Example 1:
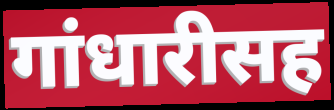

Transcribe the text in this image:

गांधारीसह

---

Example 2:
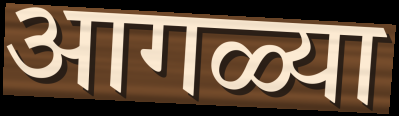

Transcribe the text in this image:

आगळ्या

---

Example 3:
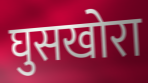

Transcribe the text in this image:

घुसखोरा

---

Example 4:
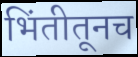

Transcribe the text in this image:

भिंतीतूनच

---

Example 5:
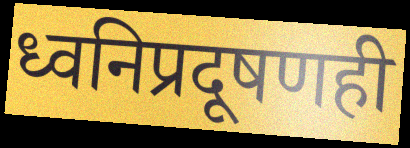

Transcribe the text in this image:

ध्वनिप्रदूषणही